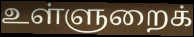
உள்ளுறைக்